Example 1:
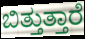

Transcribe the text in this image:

ಬಿತ್ತುತ್ತಾರೆ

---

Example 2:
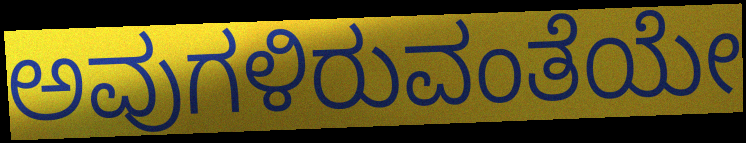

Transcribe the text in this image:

ಅವುಗಳಿರುವಂತೆಯೇ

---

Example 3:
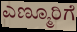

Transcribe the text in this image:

ಎಣ್ಮೂರಿಗೆ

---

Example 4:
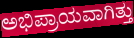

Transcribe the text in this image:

ಅಭಿಪ್ರಾಯವಾಗಿತ್ತು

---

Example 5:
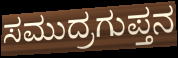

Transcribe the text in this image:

ಸಮುದ್ರಗುಪ್ತನ